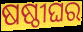
ଷଷ୍ଠୀଘର